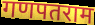
गणपतराम